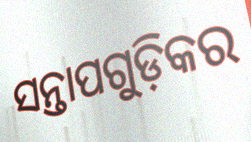
ସନ୍ତାପଗୁଡ଼ିକର